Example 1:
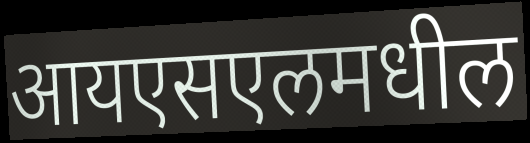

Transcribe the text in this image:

आयएसएलमधील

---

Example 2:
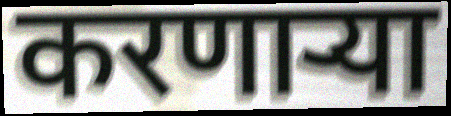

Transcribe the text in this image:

करणाऱ्या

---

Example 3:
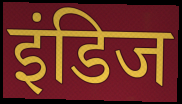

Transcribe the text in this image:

इंडिज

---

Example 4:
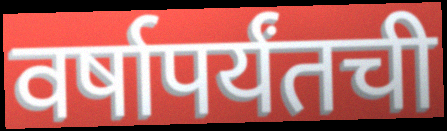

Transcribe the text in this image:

वर्षापर्यंतची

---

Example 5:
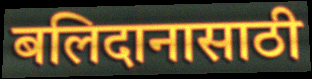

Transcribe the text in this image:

बलिदानासाठी